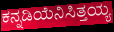
ಕನ್ನಡಿಯೆನಿಸಿತ್ತಯ್ಯ